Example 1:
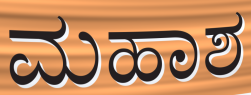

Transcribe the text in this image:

ಮಹಾಶ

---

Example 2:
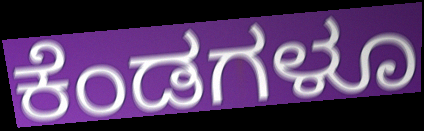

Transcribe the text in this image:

ಕೆಂಡಗಳೂ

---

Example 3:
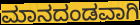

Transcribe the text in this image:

ಮಾನದಂಡವಾಗಿ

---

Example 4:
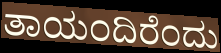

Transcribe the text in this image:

ತಾಯಂದಿರೆಂದು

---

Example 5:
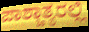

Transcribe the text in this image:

ಪಾಶ್ಚಾತ್ಯರಲ್ಲಿ